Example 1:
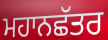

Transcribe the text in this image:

ਮਹਾਨਛੱਤਰ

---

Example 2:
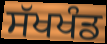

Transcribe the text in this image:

ਸੱਖਖੰਡ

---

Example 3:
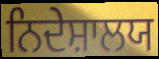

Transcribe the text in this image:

ਨਿਦੇਸ਼ਾਲਯ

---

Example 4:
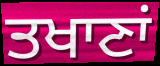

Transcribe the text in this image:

ਤਖਾਣਾਂ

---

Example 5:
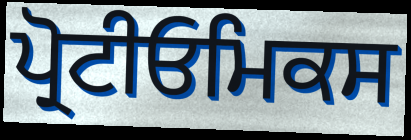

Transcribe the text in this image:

ਪ੍ਰੋਟੀਓਮਿਕਸ